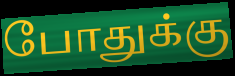
போதுக்கு